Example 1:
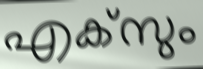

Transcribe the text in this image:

എക്‌സും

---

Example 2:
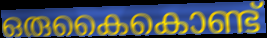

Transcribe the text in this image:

ഒരുകൈകൊണ്ട്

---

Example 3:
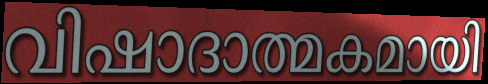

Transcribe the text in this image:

വിഷാദാത്മകമായി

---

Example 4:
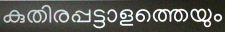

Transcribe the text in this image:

കുതിരപ്പട്ടാളത്തെയും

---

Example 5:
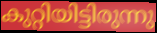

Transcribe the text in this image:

കുറ്റിയിട്ടിരുന്നു